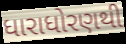
ધારાધોરણથી